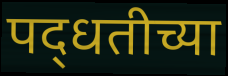
पद्धतीच्या